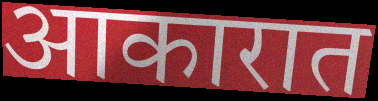
आकारात